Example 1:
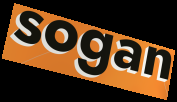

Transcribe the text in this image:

sogan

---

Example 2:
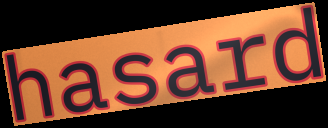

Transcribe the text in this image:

hasard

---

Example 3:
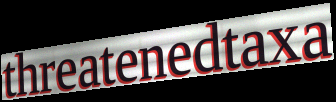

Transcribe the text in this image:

threatenedtaxa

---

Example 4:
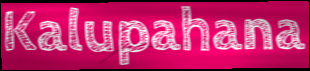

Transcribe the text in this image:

Kalupahana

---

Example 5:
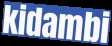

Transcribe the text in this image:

kidambi